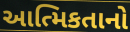
આત્મિકતાનો